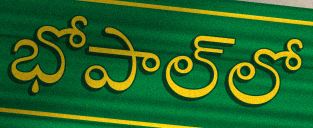
భోపాల్‌లో